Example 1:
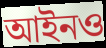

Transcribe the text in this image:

আইনও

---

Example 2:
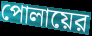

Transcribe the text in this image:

পোলায়ের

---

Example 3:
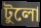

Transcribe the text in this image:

টুলো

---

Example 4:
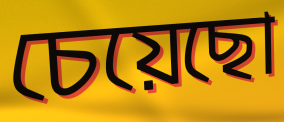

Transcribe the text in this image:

চেয়েছো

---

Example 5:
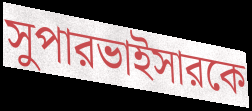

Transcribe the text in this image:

সুপারভাইসারকে